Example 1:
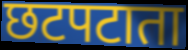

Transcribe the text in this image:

छटपटाता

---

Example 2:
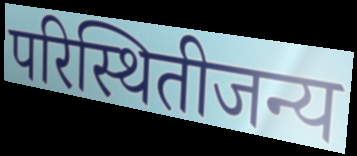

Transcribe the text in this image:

परिस्थितीजन्य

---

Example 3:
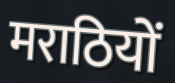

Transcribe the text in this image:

मराठियों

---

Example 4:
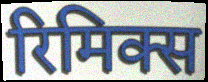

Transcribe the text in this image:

रिमिक्स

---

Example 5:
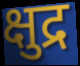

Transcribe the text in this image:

क्षुद्र